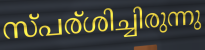
സ്പര്ശിച്ചിരുന്നു